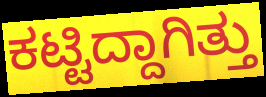
ಕಟ್ಟಿದ್ದಾಗಿತ್ತು